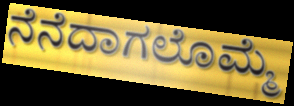
ನೆನೆದಾಗಲೊಮ್ಮೆ